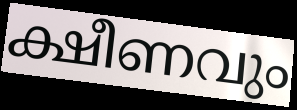
ക്ഷീണവും